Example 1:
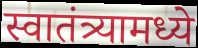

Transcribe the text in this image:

स्वातंत्र्यामध्ये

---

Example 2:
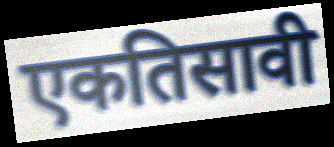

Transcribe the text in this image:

एकतिसावी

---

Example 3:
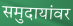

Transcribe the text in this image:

समुदायांवर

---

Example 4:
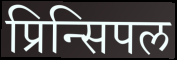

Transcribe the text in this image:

प्रिन्सिपल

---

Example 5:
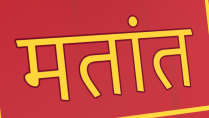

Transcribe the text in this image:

मतांत